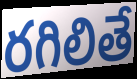
రగిలితే